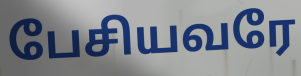
பேசியவரே